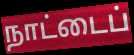
நாட்டைப்